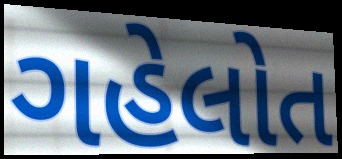
ગહેલોત